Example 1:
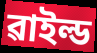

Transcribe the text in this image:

ৱাইল্ড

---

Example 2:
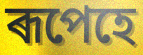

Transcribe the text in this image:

ৰূপেহে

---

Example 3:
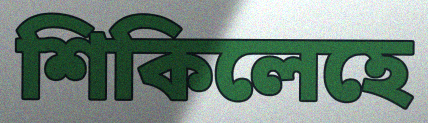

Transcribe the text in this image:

শিকিলেহে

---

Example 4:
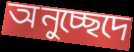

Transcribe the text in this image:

অনুচ্ছেদে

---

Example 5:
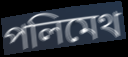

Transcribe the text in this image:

পলিমেথ